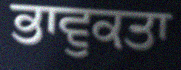
ਭਾਵੁਕਤਾ